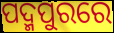
ପଦ୍ମପୁରରେ